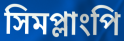
সিমপ্লাংপি